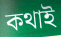
কথাই